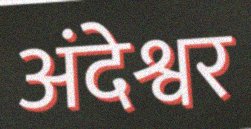
अंदेश्वर